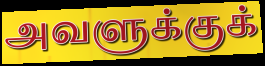
அவளுக்குக்